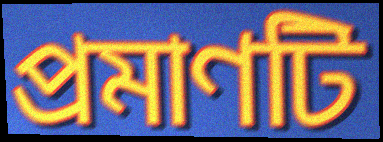
প্রমাণটি